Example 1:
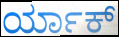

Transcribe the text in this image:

ರ್ಯಾಕ್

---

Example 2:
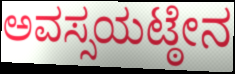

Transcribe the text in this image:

ಅವಸ್ಸಯಟ್ಠೇನ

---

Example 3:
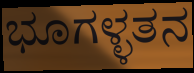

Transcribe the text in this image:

ಭೂಗಳ್ಳತನ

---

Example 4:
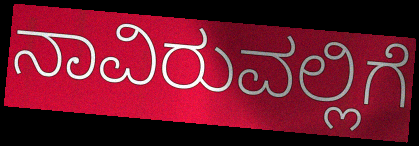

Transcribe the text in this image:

ನಾವಿರುವಲ್ಲಿಗೆ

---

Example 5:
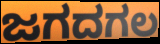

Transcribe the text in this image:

ಜಗದಗಲ